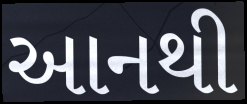
આનથી